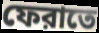
ফেরাতে